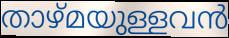
താഴ്മയുള്ളവൻ